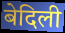
बेदिली